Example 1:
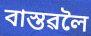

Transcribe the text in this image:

বাস্তৱলৈ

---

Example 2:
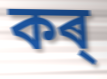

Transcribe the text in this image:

কৰ্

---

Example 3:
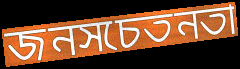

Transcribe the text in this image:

জনসচেতনতা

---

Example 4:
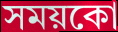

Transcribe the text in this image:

সময়কো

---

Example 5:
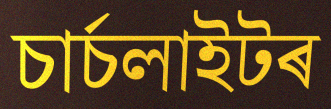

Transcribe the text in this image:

চাৰ্চলাইটৰ